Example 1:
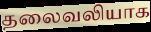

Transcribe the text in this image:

தலைவலியாக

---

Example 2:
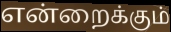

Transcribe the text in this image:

என்றைக்கும்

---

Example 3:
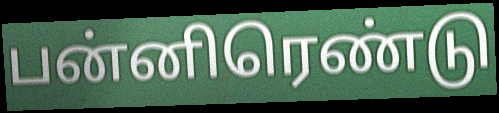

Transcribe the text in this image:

பன்னிரெண்டு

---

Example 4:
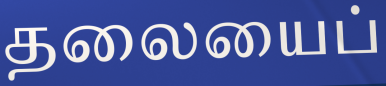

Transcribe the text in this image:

தலையைப்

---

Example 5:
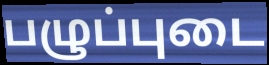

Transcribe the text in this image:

பழுப்புடை